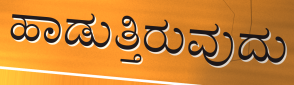
ಹಾಡುತ್ತಿರುವುದು